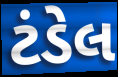
ટંડેલ